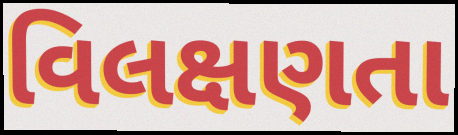
વિલક્ષણતા